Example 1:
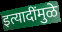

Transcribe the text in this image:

इत्यादींमुळे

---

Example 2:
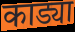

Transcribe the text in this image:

काड्या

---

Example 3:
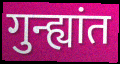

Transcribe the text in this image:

गुन्ह्यांत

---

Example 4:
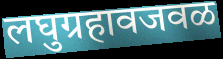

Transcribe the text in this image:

लघुग्रहावजवळ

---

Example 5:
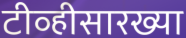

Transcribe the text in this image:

टीव्हीसारख्या